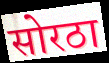
सोरठा